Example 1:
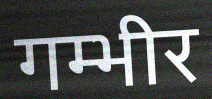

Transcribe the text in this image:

गम्भीर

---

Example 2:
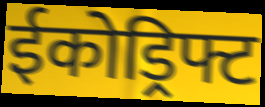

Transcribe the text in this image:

ईकोड्रिफ्ट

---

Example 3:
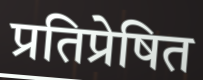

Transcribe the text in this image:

प्रतिप्रेषित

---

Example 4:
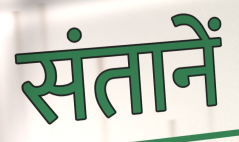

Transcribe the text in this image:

संतानें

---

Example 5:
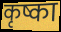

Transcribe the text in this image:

कृष्का